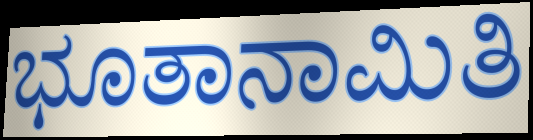
ಭೂತಾನಾಮಿತಿ